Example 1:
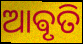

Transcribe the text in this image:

ଆଵୃତି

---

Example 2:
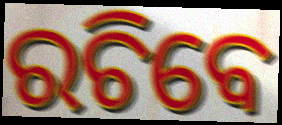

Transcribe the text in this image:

ରଚିବେ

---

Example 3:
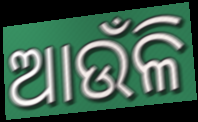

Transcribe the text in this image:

ଆଉଁଳି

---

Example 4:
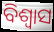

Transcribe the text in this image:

ବିଶ୍ଵାସ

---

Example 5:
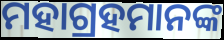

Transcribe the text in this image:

ମହାଗ୍ରହମାନଙ୍କ